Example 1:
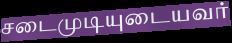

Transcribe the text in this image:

சடைமுடியுடையவர்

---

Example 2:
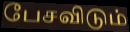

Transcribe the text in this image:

பேசவிடும்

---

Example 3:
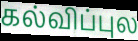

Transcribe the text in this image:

கல்விப்புல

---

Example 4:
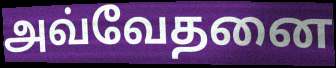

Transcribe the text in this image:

அவ்வேதனை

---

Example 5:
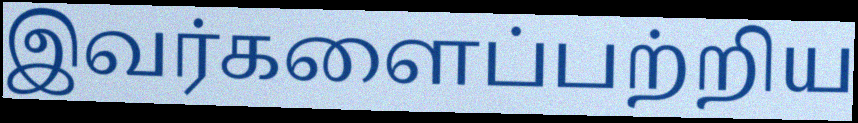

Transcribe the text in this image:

இவர்களைப்பற்றிய